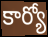
కార్యో